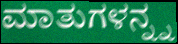
ಮಾತುಗಳನ್ನ್ನ